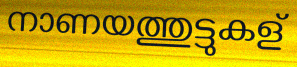
നാണയത്തുട്ടുകള്